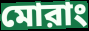
মোরাং